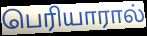
பெரியாரால்